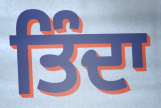
ਤਿੰਦਾ